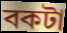
বকটা